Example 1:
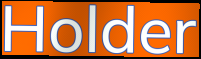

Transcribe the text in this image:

Holder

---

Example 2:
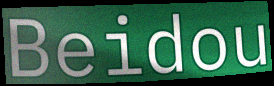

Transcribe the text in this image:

Beidou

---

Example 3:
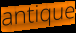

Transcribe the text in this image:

antique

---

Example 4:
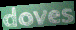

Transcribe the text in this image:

doves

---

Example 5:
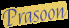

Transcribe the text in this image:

Prasoon